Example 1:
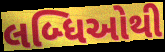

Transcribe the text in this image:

લબ્ધિઓથી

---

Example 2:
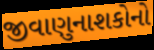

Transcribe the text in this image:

જીવાણુનાશકોનો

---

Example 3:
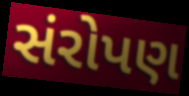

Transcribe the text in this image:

સંરોપણ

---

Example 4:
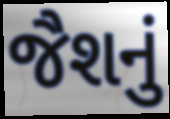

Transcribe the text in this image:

જૈશનું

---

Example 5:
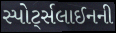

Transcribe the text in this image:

સ્પોર્ટ્સલાઈનની